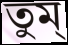
তুম্